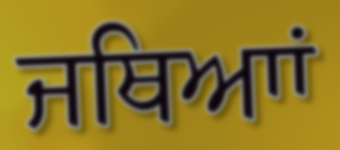
ਜਥਿਆਾਂ